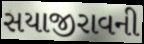
સયાજીરાવની